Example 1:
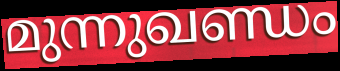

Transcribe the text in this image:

മുന്നുഖണ്ഡം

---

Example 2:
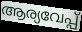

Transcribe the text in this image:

ആര്യവേപ്പ്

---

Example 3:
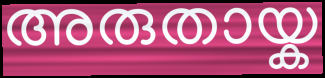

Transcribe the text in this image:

അരുതായ്ക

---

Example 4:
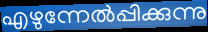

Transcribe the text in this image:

എഴുന്നേൽപ്പിക്കുന്നു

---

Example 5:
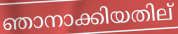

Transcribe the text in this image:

ഞാനാക്കിയതില്